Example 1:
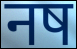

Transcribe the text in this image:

नष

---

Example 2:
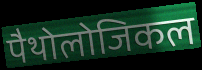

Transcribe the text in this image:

पैथोलोजिकल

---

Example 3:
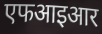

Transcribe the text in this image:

एफआइआर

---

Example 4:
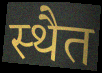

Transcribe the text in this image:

स्थैत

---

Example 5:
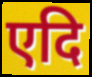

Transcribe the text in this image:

एदि